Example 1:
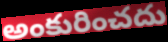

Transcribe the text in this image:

అంకురించదు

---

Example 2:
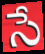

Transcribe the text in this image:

సే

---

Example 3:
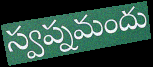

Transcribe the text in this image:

స్వప్నమందు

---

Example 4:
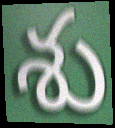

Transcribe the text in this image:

శు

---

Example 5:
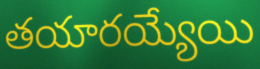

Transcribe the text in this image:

తయారయ్యేయి